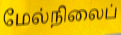
மேல்நிலைப்